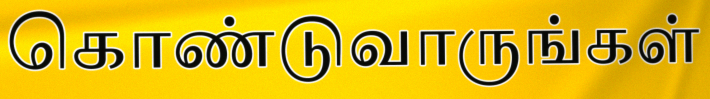
கொண்டுவாருங்கள்